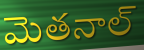
మెతనాల్